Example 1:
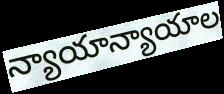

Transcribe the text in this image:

న్యాయాన్యాయాల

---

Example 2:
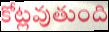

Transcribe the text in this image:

కోట్లవుతుంది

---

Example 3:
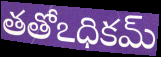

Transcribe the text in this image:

తతోఽధికమ్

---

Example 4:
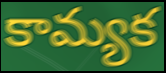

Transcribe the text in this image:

కామ్యక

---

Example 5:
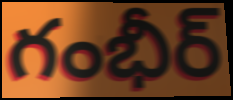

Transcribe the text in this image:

గంభీర్